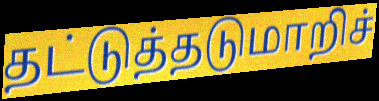
தட்டுத்தடுமாறிச்